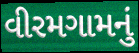
વીરમગામનું